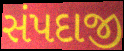
સંપદાજી